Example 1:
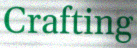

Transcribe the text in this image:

Crafting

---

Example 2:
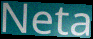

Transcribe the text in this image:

Neta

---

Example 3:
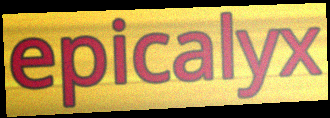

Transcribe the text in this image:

epicalyx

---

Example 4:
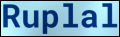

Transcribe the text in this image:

Ruplal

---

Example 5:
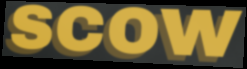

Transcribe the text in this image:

scow